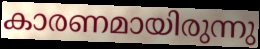
കാരണമായിരുന്നു